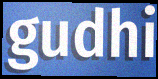
gudhi